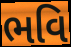
ભવિ